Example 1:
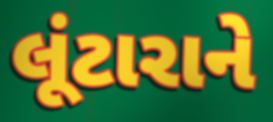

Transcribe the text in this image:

લૂંટારાને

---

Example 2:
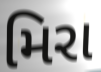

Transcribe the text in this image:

મિરા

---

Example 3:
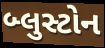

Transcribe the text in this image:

બ્લુસ્ટોન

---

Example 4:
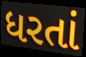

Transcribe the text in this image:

ધરતાં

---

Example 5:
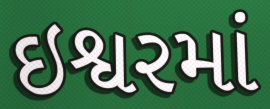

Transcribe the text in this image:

ઇશ્વરમાં